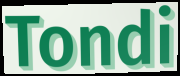
Tondi